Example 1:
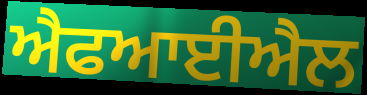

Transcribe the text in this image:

ਐਫਆਈਐਲ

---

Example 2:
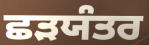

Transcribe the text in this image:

ਛੜਯੰਤਰ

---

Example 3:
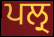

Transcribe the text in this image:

ਪਲ੍ਰ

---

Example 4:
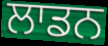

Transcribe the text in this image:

ਲਾਡਨ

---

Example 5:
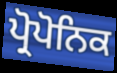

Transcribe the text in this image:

ਪ੍ਰੋਪੋਨਿਕ